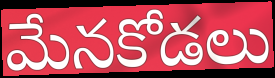
మేనకోడలు